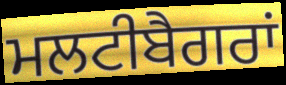
ਮਲਟੀਬੈਗਰਾਂ